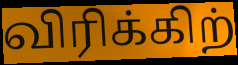
விரிக்கிற்